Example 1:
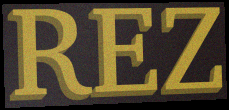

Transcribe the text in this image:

REZ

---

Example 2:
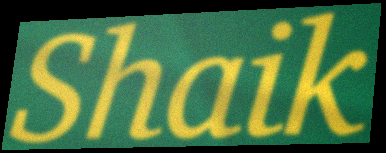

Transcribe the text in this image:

Shaik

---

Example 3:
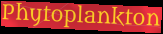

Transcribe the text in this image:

Phytoplankton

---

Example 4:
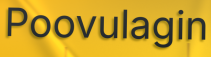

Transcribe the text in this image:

Poovulagin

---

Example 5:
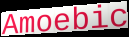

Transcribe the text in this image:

Amoebic